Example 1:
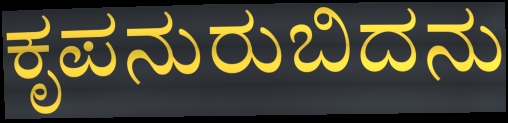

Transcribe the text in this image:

ಕೃಪನುರುಬಿದನು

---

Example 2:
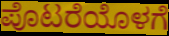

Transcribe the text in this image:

ಪೊಟರೆಯೊಳಗೆ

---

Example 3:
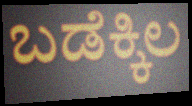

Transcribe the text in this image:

ಬಡೆಕ್ಕಿಲ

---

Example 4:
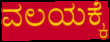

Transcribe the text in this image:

ವಲಯಕ್ಕೆ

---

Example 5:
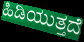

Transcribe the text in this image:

ಹಿಡಿಯುತ್ತದೆ